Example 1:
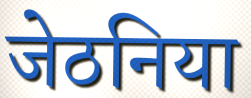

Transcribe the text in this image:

जेठनिया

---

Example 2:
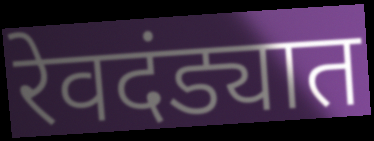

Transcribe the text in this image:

रेवदंड्यात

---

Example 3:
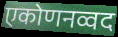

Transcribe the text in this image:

एकोणनव्वद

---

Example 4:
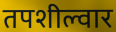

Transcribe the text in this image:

तपशील्वार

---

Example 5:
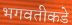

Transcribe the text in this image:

भगवतीकडे